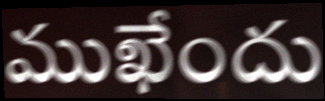
ముఖేందు